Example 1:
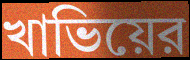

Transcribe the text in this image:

খাভিয়ের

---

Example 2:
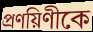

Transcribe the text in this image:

প্রণয়িণীকে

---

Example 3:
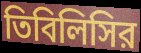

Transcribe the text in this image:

তিবিলিসির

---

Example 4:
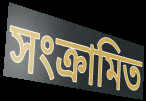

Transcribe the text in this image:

সংক্রামিত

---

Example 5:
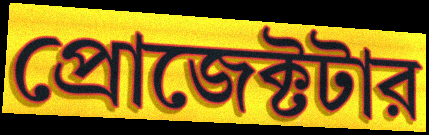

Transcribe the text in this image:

প্রোজেক্টটার